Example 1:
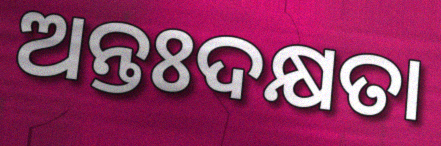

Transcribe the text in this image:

ଅନ୍ତଃଦକ୍ଷତା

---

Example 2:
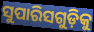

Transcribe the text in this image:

ସୁପାରିସଗୁଡ଼ିକୁ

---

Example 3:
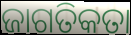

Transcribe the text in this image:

ଜାଗତିକତା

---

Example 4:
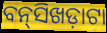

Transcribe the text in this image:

ବନ୍‌ସିଖଡ଼ାଟା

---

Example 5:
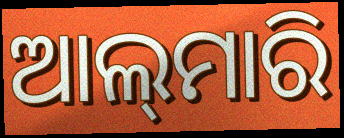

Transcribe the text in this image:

ଆଲ୍‌ମାରି